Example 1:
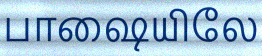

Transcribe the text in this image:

பாஷையிலே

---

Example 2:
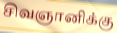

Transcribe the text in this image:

சிவஞானிக்கு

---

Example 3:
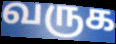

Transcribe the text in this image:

வருக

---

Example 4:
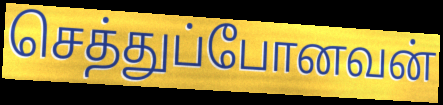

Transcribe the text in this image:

செத்துப்போனவன்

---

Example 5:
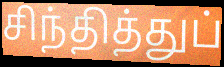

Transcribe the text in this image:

சிந்தித்துப்